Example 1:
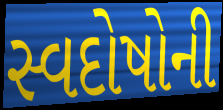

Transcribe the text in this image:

સ્વદોષોની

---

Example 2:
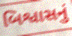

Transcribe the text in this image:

બિશ્વાસનું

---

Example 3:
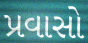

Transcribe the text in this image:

પ્રવાસો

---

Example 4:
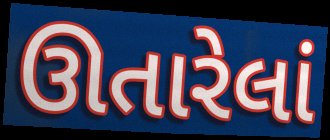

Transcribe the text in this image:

ઊતારેલાં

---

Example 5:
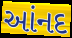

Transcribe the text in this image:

આંનદ